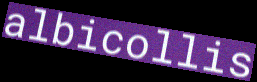
albicollis